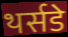
थर्सडे